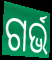
ଗର୍ଭ